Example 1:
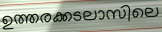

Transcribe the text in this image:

ഉത്തരക്കടലാസിലെ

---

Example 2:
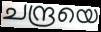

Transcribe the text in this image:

ചന്ദ്രയെ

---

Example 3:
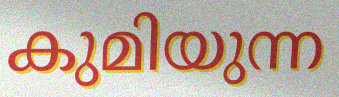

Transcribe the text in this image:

കുമിയുന്ന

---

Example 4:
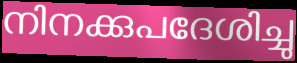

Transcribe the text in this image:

നിനക്കുപദേശിച്ചു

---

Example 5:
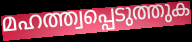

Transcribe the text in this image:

മഹത്ത്വപ്പെടുത്തുക